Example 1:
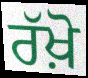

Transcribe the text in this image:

ਰੱਖ਼ੋ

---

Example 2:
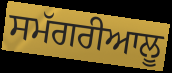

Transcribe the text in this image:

ਸਮੱਗਰੀਆਲੂ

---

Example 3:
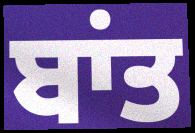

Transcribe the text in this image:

ਬਾਂਤ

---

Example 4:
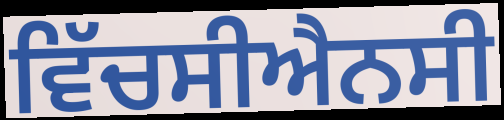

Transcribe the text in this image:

ਵਿੱਚਸੀਐਨਸੀ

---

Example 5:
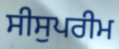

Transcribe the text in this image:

ਸੀਸੁਪਰੀਮ